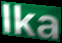
Ika